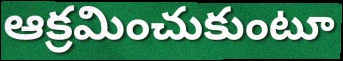
ఆక్రమించుకుంటూ